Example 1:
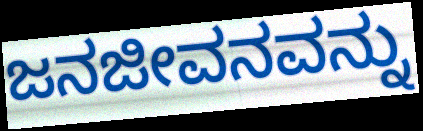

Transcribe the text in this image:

ಜನಜೀವನವನ್ನು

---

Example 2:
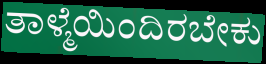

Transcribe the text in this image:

ತಾಳ್ಮೆಯಿಂದಿರಬೇಕು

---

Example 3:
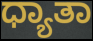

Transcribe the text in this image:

ಧ್ಯಾತಾ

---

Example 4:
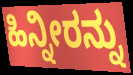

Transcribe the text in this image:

ಹಿನ್ನೀರನ್ನು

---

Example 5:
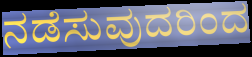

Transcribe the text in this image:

ನಡೆಸುವುದರಿಂದ